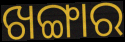
ଖଙ୍ଗାର